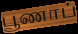
பூணாப்